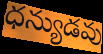
ధన్యుడవు